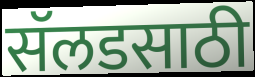
सॅलडसाठी